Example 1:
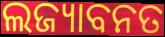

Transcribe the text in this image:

ଲଜ୍ୟାବନତ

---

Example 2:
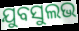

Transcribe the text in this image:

ଯୁବସୁଲଭ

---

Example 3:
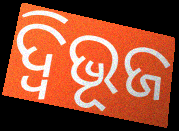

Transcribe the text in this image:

ଦ୍ବିଭୂଜ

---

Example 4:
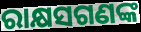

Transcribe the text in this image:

ରାକ୍ଷସଗଣଙ୍କ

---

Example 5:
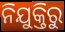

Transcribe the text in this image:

ନିଯୁକ୍ତିରୁ